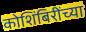
कोशिंबिरींच्या